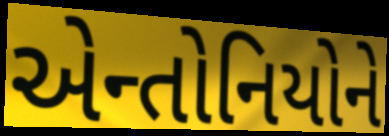
એન્તોનિયોને